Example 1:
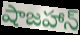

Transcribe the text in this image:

షాజహాన్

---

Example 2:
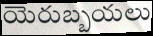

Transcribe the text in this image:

యెరుబ్బయలు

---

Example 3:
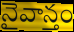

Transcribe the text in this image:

నైవాన్తం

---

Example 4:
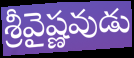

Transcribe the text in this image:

శ్రీవైష్ణవుడు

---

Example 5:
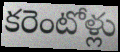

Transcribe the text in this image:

కరెంటోళ్లు